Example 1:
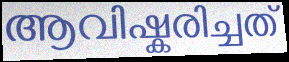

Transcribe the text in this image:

ആവിഷ്കരിച്ചത്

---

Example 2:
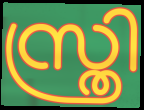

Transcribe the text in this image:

സ്ത്രി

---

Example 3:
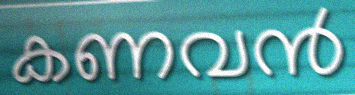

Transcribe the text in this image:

കണവൻ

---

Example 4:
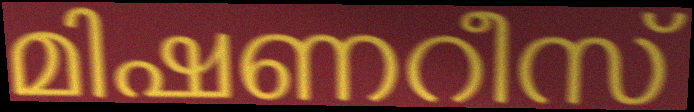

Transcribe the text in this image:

മിഷണറീസ്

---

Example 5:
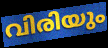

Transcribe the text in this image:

വിരിയും